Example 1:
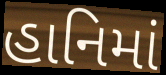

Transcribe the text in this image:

હાનિમાં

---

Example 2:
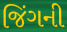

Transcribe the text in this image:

જિંગની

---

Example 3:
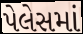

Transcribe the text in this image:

પેલેસમાં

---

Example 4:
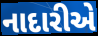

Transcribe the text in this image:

નાદારીએ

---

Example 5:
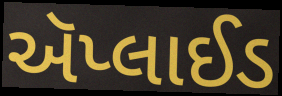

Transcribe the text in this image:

ઍપ્લાઈડ